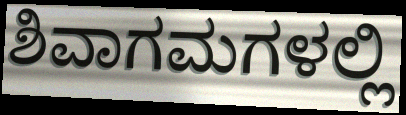
ಶಿವಾಗಮಗಳಲ್ಲಿ